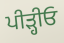
ਪੀੜ੍ਹੀਓ